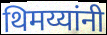
थिमय्यांनी